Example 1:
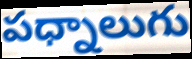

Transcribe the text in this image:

పధ్నాలుగు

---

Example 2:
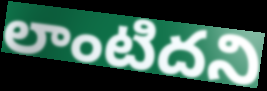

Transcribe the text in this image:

లాంటిదని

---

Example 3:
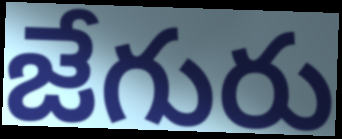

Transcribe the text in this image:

జేగురు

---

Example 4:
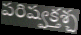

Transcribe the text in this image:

పరిష్వక్తశ్చ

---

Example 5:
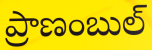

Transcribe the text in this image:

ప్రాణంబుల్